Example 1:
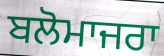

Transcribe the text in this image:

ਬਲੋਮਾਜਰਾ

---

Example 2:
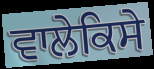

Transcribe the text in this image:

ਵਾਲੇਕਿਸੇ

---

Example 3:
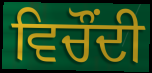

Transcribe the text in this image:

ਵਿਚੌਂਦੀ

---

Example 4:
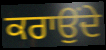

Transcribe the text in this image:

ਕਰਾਉੰਦੇ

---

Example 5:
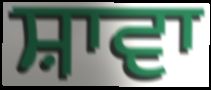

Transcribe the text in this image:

ਸ਼ਾਵਾ